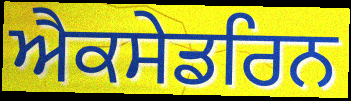
ਐਕਸੇਡਰਿਨ